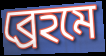
ব্রেহমে